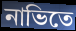
নাভিতে